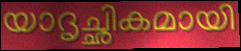
യാദൃച്ഛികമായി